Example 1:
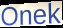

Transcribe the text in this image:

Onek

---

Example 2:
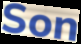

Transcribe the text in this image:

Son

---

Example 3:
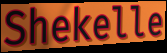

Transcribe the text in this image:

Shekelle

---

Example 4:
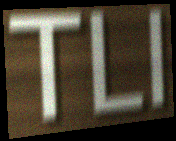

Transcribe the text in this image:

TLI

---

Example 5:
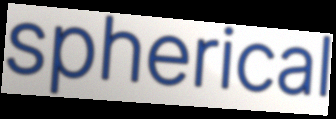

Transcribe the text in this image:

spherical